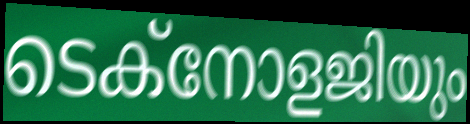
ടെക്നോളജിയും